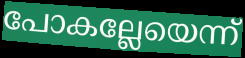
പോകല്ലേയെന്ന്